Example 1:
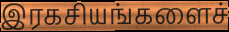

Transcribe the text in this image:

இரகசியங்களைச்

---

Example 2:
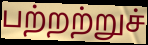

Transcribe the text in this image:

பற்றற்றுச்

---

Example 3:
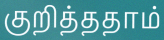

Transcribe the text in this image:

குறித்ததாம்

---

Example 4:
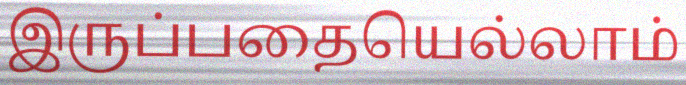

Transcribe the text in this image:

இருப்பதையெல்லாம்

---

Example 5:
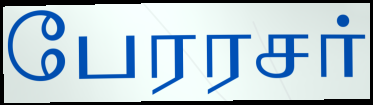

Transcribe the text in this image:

பேரரசர்